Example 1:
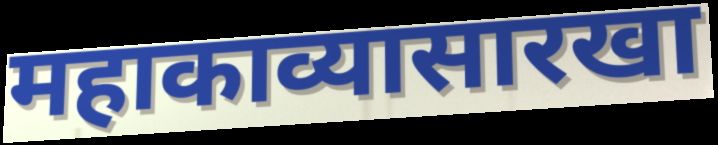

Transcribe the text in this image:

महाकाव्यासारखा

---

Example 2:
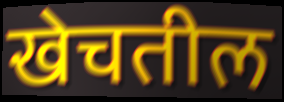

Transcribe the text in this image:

खेचतील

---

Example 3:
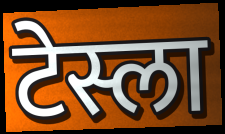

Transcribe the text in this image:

टेस्ला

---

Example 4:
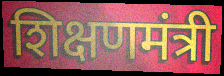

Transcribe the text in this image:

शिक्षणमंत्री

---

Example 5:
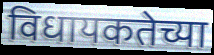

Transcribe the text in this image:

विधायकतेच्या